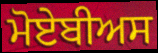
ਮੋਏਬੀਅਸ